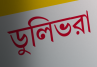
ডুলিভরা